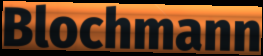
Blochmann